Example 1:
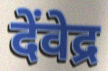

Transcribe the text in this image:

देंवेद्र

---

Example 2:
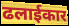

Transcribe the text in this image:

ढलाईकार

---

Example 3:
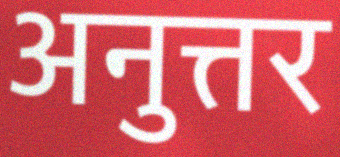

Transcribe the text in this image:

अनुत्तर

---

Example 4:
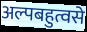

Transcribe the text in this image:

अल्पबहुत्वसे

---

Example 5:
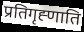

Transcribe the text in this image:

प्रतिगृह्णाति